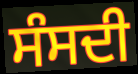
ਸੰਸਦੀ